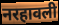
नरहावली